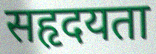
सहृदयता